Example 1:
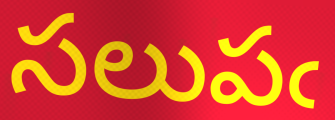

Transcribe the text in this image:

సలుపఁ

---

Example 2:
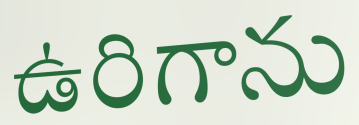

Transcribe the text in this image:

ఉరిగాను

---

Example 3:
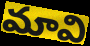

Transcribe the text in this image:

మావి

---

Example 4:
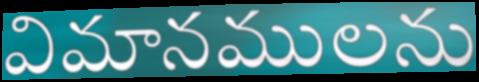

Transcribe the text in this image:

విమానములను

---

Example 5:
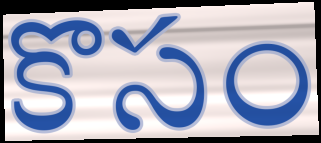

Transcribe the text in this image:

కొసం